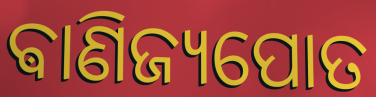
ଵାଣିଜ୍ୟପୋତ